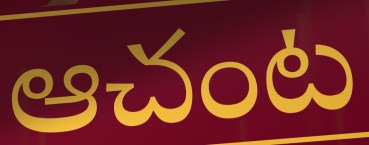
ఆచంట